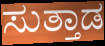
ಸುತ್ತಾಡ